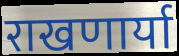
राखणार्या